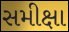
સમીક્ષા